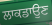
ਲਾਕਡਾਉਣ